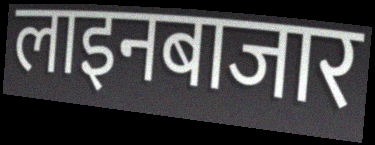
लाइनबाजार